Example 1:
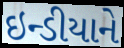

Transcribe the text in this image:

ઇન્ડીયાને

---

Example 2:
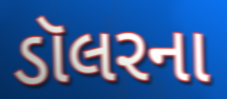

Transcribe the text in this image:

ડૉલરના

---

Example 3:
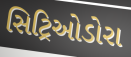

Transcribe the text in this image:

સિટ્રિઓડોરા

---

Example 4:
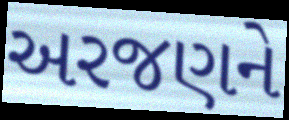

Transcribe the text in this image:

અરજણને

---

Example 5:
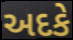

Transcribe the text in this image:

અદકે